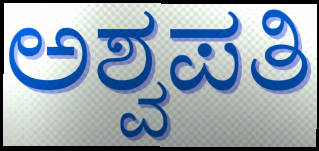
ಅಶ್ವಪತಿ